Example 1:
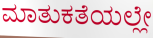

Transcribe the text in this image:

ಮಾತುಕತೆಯಲ್ಲೇ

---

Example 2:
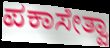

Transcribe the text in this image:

ಪಕಾಸೇತ್ವಾ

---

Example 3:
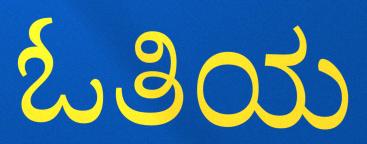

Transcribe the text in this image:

ಓತಿಯ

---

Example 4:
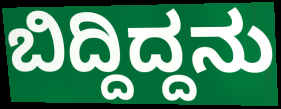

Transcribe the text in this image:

ಬಿದ್ದಿದ್ದನು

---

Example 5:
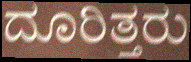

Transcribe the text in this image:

ದೂರಿತ್ತರು